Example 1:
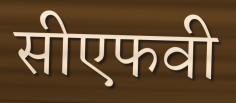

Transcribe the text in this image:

सीएफवी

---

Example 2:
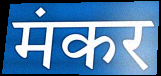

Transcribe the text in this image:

मंकर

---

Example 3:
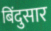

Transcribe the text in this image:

बिंदुसार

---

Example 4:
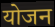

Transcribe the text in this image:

योजन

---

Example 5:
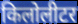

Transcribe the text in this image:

किलोलीटर